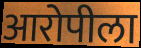
आरोपीला